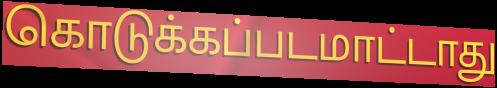
கொடுக்கப்படமாட்டாது